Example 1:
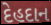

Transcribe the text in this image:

દેહદાન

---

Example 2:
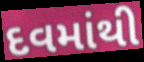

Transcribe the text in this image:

દવમાંથી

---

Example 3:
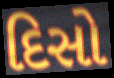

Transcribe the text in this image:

દિસો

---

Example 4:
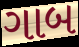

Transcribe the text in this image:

ગાબ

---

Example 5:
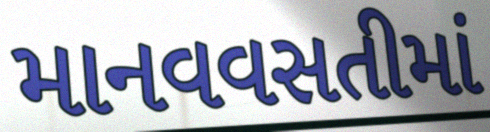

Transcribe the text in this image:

માનવવસતીમાં